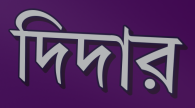
দিদার